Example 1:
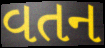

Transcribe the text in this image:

વતન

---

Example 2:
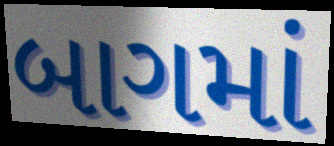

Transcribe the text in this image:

બાગમાં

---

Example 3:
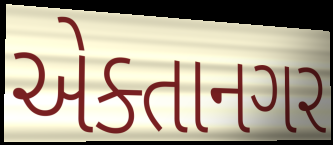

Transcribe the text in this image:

એક્તાનગર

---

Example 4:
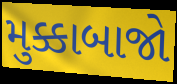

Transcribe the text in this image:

મુક્કાબાજો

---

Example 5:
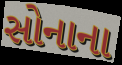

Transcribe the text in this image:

સોનાના